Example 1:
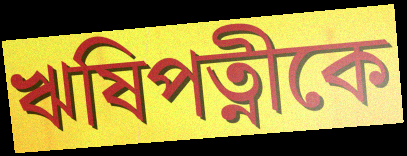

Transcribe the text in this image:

ঋষিপত্নীকে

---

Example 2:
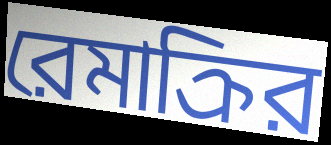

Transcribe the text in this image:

রেমাক্রির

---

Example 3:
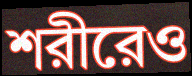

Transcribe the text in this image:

শরীরেও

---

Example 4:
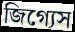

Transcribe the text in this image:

জিগ্যেস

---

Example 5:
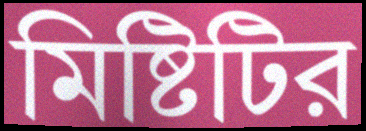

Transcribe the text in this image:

মিষ্টিটির